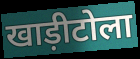
खाड़ीटोला